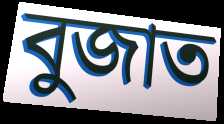
বুজাত